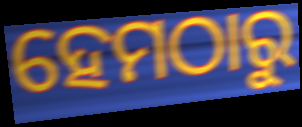
ହେମଠାରୁ